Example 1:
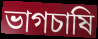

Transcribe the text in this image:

ভাগচাষি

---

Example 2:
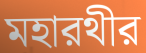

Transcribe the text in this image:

মহারথীর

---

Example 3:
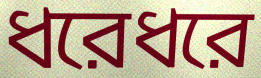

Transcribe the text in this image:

ধরেধরে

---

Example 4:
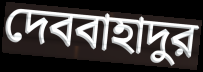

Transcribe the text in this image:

দেববাহাদুর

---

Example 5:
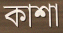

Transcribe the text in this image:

কাশা